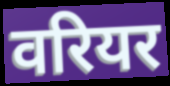
वरियर